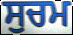
ਸੁਚਮ